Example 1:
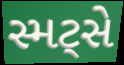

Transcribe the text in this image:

સ્મટ્સે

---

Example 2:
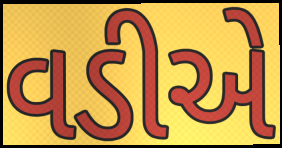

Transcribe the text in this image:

વડીએ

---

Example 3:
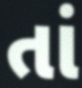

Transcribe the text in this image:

તાં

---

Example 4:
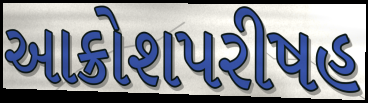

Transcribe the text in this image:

આક્રોશપરીષહ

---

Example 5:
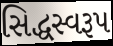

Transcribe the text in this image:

સિદ્ધસ્વરૂપ